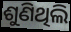
ଶୁଣିଥିଲି